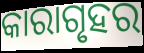
କାରାଗୃହର